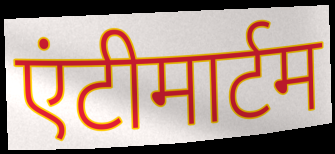
एंटीमार्टम